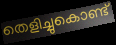
തെളിച്ചുകൊണ്ട്